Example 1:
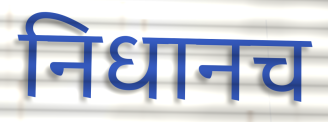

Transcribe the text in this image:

निधानच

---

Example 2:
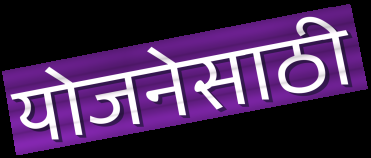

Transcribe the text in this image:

योजनेसाठी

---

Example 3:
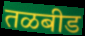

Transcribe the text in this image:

तळबीड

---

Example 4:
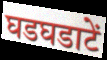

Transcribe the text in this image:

घडघडाटें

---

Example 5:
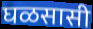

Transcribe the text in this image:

घळसासी